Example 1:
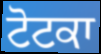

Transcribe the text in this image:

ਟੋਟਕਾ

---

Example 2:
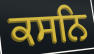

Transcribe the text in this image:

ਕਸਨਿ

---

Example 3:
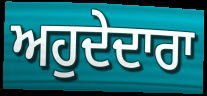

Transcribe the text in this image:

ਅਹੁਦੇਦਾਰਾ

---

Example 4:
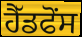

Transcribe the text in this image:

ਹੈੱਡਫੋਂਸ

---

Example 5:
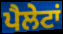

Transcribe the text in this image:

ਪੈਲੇਟਾਂ